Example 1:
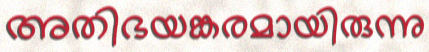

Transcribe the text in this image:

അതിഭയങ്കരമായിരുന്നു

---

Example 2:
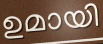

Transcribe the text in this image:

ഉമായി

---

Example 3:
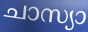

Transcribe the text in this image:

ചാസ്യാ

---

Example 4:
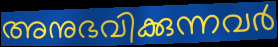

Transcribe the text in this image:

അനുഭവിക്കുന്നവർ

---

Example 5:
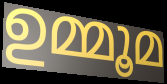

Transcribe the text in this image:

ഉമ്മൂമ